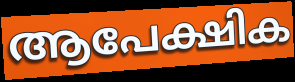
ആപേക്ഷിക